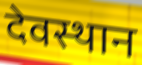
देवस्थान